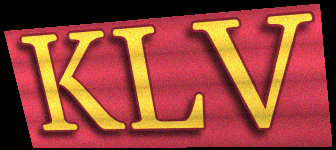
KLV